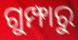
ଗୁମ୍ଫାରୁ